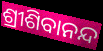
ଶ୍ରୀଶିବାନନ୍ଦ